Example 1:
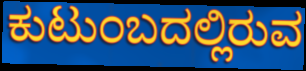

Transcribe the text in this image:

ಕುಟುಂಬದಲ್ಲಿರುವ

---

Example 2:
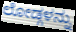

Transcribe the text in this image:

ಲೋಡ್ಗಳನ್ನು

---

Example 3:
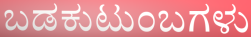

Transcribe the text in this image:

ಬಡಕುಟುಂಬಗಳು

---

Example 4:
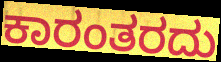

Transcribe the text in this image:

ಕಾರಂತರದು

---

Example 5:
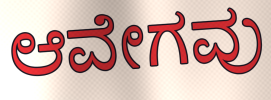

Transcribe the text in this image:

ಆವೇಗವು